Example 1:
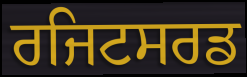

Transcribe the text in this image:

ਰਜਿਟਸਰਡ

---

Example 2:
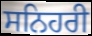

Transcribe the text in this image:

ਸਨਿਹਰੀ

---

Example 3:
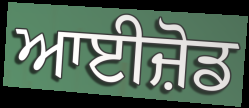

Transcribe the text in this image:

ਆਈਜ਼ੋਡ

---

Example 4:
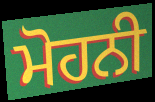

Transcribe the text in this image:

ਮੋਹਨੀ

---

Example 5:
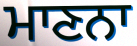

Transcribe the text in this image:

ਮਾਣਨਾ